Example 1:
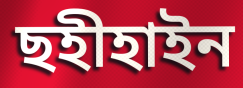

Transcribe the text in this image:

ছহীহাইন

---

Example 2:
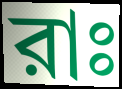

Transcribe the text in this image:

রাঃ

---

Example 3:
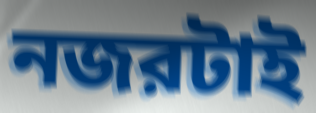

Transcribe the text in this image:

নজরটাই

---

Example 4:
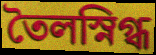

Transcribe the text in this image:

তৈলস্নিগ্ধ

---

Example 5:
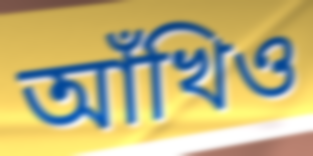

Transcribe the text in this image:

আঁখিও